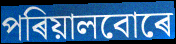
পৰিয়ালবোৰে